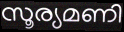
സൂര്യമണി